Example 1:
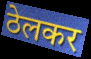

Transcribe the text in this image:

ठेलकर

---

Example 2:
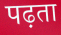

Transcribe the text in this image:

पढ़ता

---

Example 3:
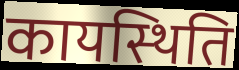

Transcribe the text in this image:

कायस्थिति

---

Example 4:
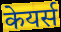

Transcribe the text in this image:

केयर्स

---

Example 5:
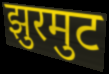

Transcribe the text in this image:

झुरमुट